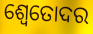
ଶ୍ୱେତୋଦର